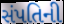
સંપતિની